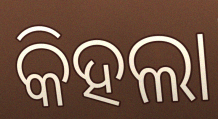
କିହଲା